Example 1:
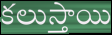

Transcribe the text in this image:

కలుస్తాయి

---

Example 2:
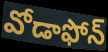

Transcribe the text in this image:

వోడాఫోన్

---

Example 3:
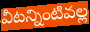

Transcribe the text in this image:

వీటన్నింటివల్ల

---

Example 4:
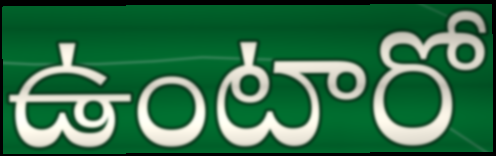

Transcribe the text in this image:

ఉంటారో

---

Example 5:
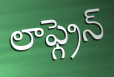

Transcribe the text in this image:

లాఫ్గ్రెన్